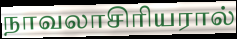
நாவலாசிரியரால்